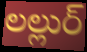
లల్లుర్